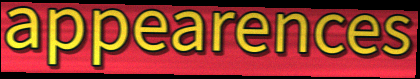
appearences